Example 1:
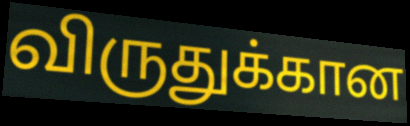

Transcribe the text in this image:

விருதுக்கான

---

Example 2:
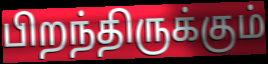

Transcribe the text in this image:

பிறந்திருக்கும்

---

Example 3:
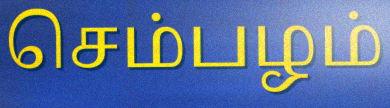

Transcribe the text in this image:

செம்பழம்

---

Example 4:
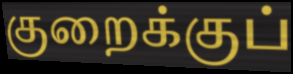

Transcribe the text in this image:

குறைக்குப்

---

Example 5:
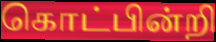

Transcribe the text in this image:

கொட்பின்றி